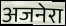
अजनेरा